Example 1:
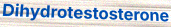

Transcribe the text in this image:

Dihydrotestosterone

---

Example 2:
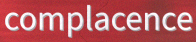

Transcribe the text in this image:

complacence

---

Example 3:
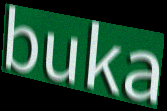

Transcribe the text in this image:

buka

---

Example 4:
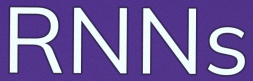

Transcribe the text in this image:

RNNs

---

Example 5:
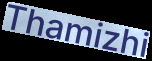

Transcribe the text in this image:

Thamizhi